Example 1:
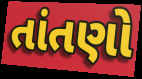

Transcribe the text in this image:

તાંતણો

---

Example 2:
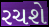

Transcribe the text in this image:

રચશે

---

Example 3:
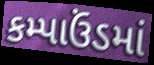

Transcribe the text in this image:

કમ્પાઉંડમાં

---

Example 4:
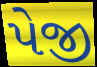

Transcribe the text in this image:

પેજી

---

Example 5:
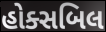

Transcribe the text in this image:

હોક્સબિલ